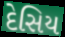
દેસિય